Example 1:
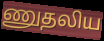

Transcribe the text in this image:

ணுதலிய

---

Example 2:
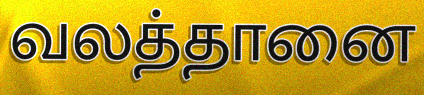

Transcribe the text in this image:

வலத்தானை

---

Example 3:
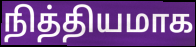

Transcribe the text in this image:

நித்தியமாக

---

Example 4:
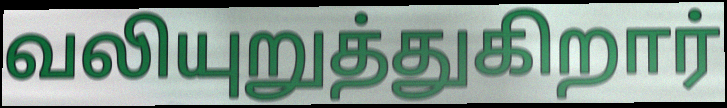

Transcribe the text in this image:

வலியுறுத்துகிறார்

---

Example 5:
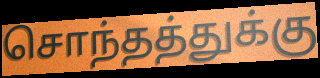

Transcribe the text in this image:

சொந்தத்துக்கு